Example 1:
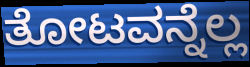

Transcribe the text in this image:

ತೋಟವನ್ನೆಲ್ಲ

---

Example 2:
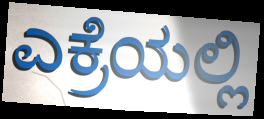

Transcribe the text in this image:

ಎಕ್ರೆಯಲ್ಲಿ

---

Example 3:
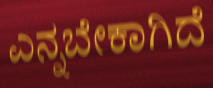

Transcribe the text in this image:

ಎನ್ನಬೇಕಾಗಿದೆ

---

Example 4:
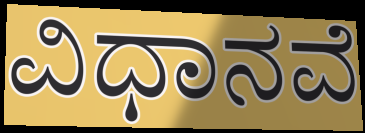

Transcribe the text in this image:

ವಿಧಾನವೆ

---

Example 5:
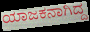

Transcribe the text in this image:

ಯಾಜಕನಾಗಿದ್ದ